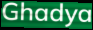
Ghadya